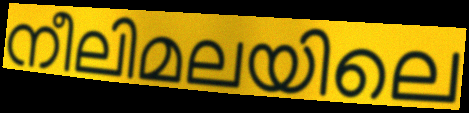
നീലിമലയിലെ